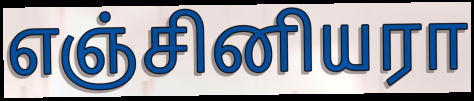
எஞ்சினியரா